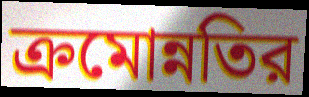
ক্রমোন্নতির